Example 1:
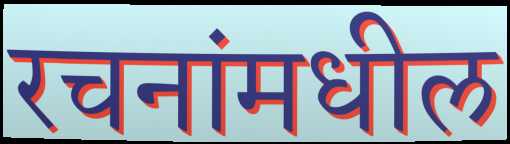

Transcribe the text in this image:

रचनांमधील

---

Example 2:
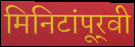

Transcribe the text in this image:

मिनिटांपूर्वी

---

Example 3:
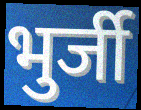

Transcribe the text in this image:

भुर्जी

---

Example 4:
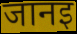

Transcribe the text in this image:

जानइ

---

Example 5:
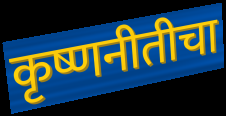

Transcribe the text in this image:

कृष्णनीतीचा